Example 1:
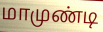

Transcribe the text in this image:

மாமுண்டி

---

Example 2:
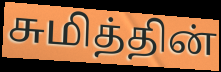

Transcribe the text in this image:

சுமித்தின்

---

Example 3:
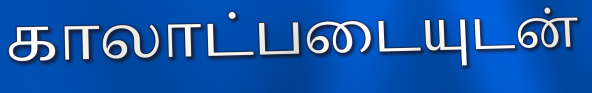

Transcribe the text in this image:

காலாட்படையுடன்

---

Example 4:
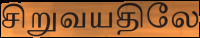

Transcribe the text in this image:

சிறுவயதிலே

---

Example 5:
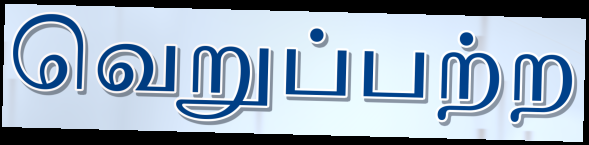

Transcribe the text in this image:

வெறுப்பற்ற